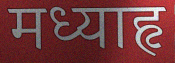
मध्याहृ